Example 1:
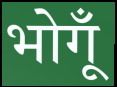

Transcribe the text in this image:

भोगूँ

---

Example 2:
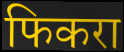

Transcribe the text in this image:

फिकरा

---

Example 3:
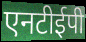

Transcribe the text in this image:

एनटीईपी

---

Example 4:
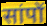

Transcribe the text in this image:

सांपों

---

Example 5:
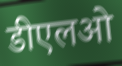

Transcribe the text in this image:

डीएलओ